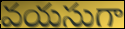
వయసుగా